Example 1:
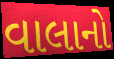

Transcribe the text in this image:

વાલાનો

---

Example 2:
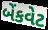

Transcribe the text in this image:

બેંકવેટ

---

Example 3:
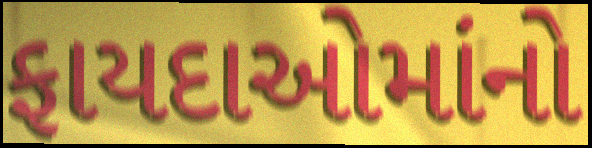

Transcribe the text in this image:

ફાયદાઓમાંનો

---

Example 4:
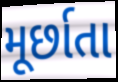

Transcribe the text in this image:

મૂર્છાતા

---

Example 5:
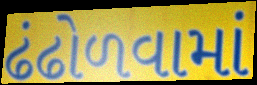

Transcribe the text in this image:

ઢંઢોળવામાં